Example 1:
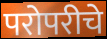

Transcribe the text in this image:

परोपरीचे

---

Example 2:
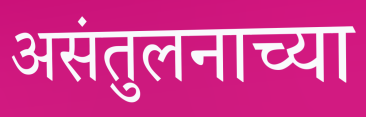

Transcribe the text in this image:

असंतुलनाच्या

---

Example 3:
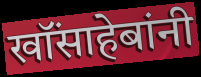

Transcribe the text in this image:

खॉंसाहेबांनी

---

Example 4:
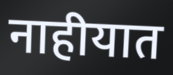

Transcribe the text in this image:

नाहीयात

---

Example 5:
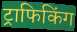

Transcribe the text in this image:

ट्राफिकिंग